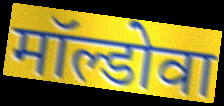
मॉल्डोवा